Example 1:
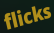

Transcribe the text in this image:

flicks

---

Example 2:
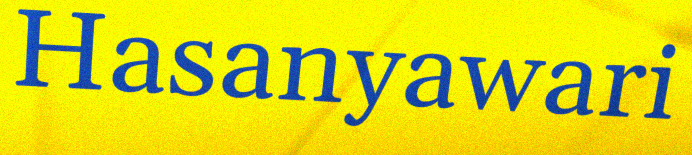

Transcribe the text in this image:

Hasanyawari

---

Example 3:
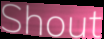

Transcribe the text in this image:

Shout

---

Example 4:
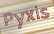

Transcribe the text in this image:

Pyxis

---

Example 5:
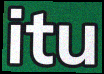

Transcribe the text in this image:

itu